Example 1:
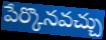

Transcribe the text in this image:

పేర్కొనవచ్చు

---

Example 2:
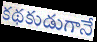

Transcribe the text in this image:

కథకుడుగానే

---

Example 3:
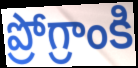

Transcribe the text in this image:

ప్రోగ్రాంకి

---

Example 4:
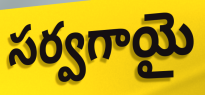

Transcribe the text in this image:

సర్వగాయై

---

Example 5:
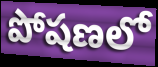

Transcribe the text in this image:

పోషణలో